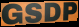
GSDP